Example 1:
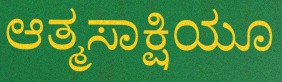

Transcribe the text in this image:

ಆತ್ಮಸಾಕ್ಷಿಯೂ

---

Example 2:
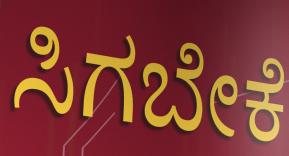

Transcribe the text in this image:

ಸಿಗಬೇಕೆ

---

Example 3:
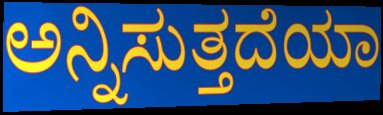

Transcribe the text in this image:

ಅನ್ನಿಸುತ್ತದೆಯಾ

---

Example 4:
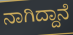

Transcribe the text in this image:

ನಾಗಿದ್ದಾನೆ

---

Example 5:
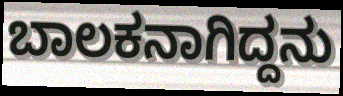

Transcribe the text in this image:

ಬಾಲಕನಾಗಿದ್ದನು